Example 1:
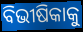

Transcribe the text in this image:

ବିଭୀଷିକାକୁ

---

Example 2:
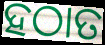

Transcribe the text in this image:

ହଠାତ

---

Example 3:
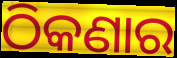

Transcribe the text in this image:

ଠିକଣାର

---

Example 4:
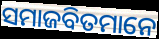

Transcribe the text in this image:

ସମାଜବିତମାନେ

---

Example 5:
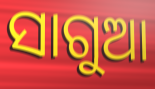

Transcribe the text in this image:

ସାଗୁଆ